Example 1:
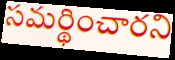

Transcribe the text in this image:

సమర్థించారని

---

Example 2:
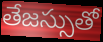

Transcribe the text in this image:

తేజస్సుతో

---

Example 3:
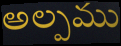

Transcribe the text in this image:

అల్పము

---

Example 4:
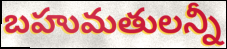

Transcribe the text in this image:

బహుమతులన్నీ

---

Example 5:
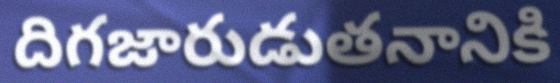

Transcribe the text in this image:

దిగజారుడుతనానికి